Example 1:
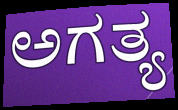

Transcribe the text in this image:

ಅಗತ್ಯ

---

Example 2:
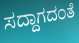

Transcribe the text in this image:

ಸದ್ದಾಗದಂತೆ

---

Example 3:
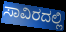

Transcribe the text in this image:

ಸಾವಿರದಲ್ಲಿ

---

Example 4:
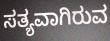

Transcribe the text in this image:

ಸತ್ಯವಾಗಿರುವ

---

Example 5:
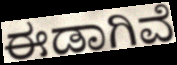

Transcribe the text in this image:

ಈಡಾಗಿವೆ